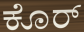
ಕೊರ್